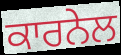
ਕਾਰਨੇਲ